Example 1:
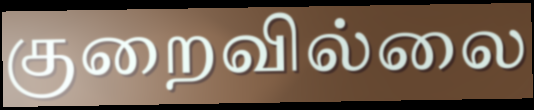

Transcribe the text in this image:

குறைவில்லை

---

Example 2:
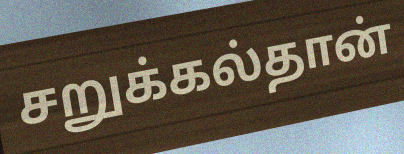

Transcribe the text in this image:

சறுக்கல்தான்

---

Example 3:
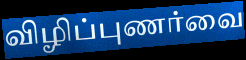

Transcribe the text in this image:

விழிப்புணர்வை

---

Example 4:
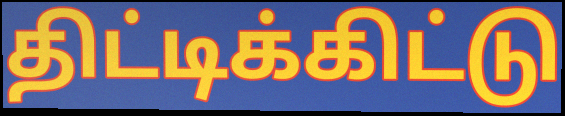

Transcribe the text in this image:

திட்டிக்கிட்டு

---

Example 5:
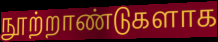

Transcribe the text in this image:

நூற்றாண்டுகளாக